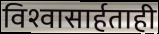
विश्वासार्हताही